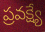
ప్రవక్ష్యే